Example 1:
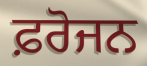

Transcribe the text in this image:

ਫ਼ਰੋਜਨ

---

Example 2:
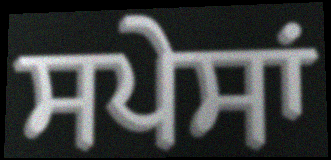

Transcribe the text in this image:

ਸਪੇਸਾਂ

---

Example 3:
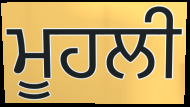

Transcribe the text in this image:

ਮੂਹਲੀ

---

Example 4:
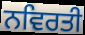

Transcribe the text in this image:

ਨਵਿਰਤੀ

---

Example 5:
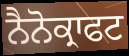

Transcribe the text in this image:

ਨੈਨੋਕ੍ਰਾਫਟ